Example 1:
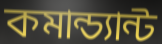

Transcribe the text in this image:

কমান্ড্যান্ট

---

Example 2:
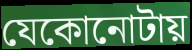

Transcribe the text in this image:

যেকোনোটায়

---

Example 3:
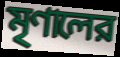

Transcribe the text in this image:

মৃণালের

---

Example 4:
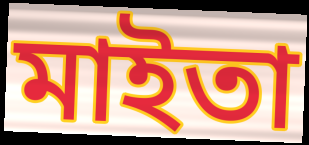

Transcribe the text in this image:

মাইতা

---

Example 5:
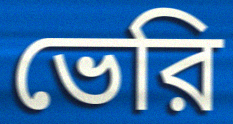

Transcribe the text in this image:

ভেরি